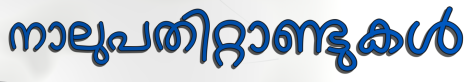
നാലുപതിറ്റാണ്ടുകൾ